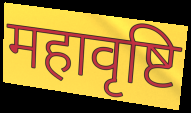
महावृष्टि